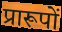
प्रारूपों